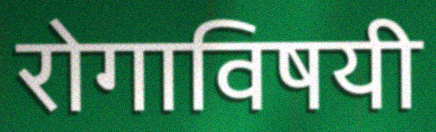
रोगाविषयी